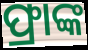
ଫ୍ରାଙ୍କ